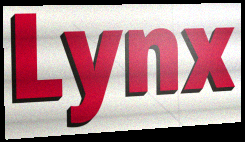
Lynx